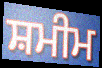
ਸ਼ਮੀਮ